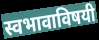
स्वभावाविषयी